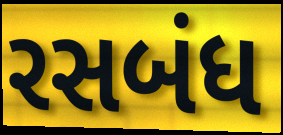
રસબંધ